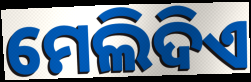
ମେଲିଦିଏ